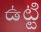
ఉట్టి